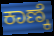
ಕಾಣ್ಕೆ